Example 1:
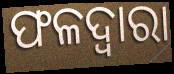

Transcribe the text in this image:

ଫଳଦ୍ୱାରା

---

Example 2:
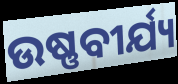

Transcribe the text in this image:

ଉଷ୍ଣବୀର୍ଯ୍ୟ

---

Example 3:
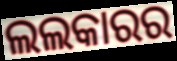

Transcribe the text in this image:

ଲଲକାରର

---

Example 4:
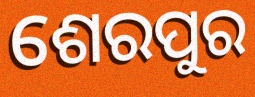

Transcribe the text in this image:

ଶେରପୁର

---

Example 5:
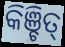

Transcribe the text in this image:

କିଞ୍ଚିତ୍